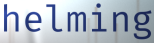
helming